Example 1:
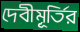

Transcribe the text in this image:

দেবীমূর্তির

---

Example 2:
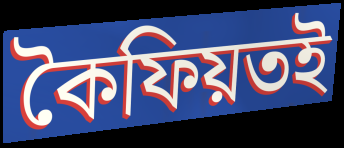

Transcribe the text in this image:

কৈফিয়তই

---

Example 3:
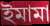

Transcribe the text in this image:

ইমামা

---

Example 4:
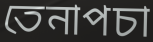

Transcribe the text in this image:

তেনাপচা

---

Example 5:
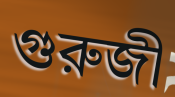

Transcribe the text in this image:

গুরুজী